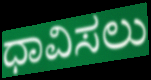
ಧಾವಿಸಲು